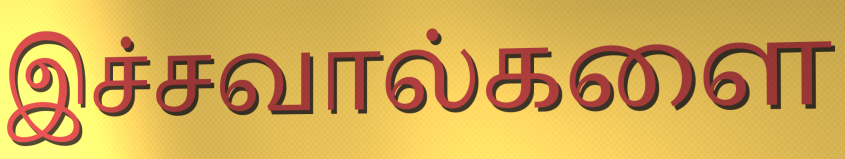
இச்சவால்களை